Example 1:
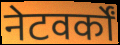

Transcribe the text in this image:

नेटवर्कों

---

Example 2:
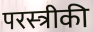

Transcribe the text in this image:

परस्त्रीकी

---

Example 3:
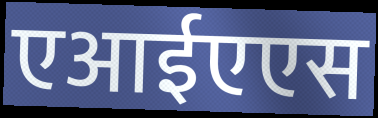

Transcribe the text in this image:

एआईएएस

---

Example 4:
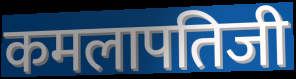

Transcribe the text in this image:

कमलापतिजी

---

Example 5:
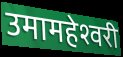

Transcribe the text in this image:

उमामहेश्वरी